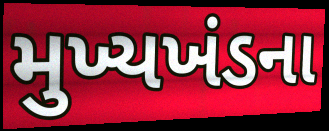
મુખ્યખંડના